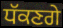
ਧੱਕਣਗੇ